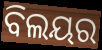
ବିଲୟର